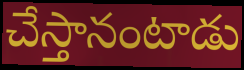
చేస్తానంటాడు